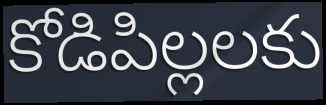
కోడిపిల్లలకు